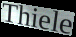
Thiele